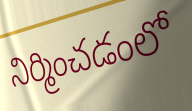
నిర్మించడంలో